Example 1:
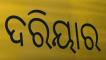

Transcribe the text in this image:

ଦରିୟାର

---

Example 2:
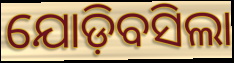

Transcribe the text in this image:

ଯୋଡ଼ିବସିଲା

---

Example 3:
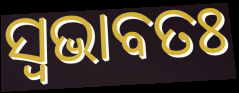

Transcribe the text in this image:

ସ୍ଵଭାବତଃ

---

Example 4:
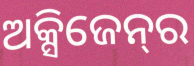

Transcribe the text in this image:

ଅକ୍ସିଜେନ୍‌ର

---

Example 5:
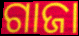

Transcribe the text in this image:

ଗାଜା